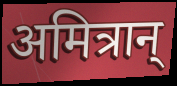
अमित्रान्